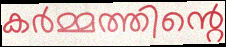
കർമ്മത്തിന്റെ